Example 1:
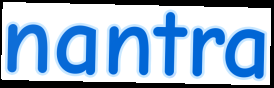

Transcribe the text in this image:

nantra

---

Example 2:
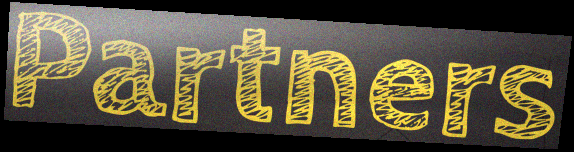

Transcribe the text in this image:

Partners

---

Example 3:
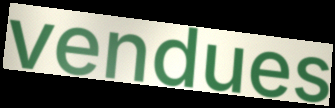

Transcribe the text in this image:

vendues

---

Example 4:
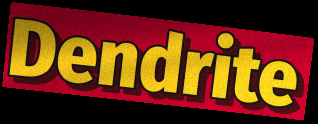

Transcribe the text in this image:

Dendrite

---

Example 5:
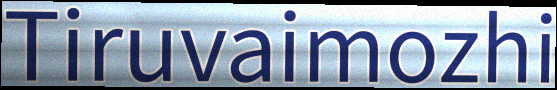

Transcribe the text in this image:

Tiruvaimozhi